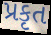
પ્રકૃત